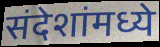
संदेशांमध्ये